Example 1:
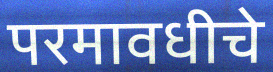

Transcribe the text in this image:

परमावधीचे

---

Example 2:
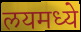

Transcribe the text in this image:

लयमध्ये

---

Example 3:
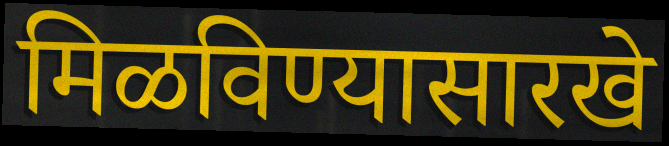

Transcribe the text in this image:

मिळविण्यासारखे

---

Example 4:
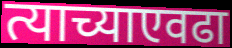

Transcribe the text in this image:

त्याच्याएवढा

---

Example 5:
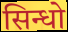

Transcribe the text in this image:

सिन्धो